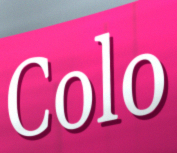
Colo